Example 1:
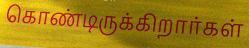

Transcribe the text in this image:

கொண்டிருக்கிறார்கள்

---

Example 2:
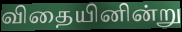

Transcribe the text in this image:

விதையினின்று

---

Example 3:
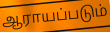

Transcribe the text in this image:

ஆராயப்படும்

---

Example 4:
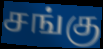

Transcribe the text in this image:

சங்கு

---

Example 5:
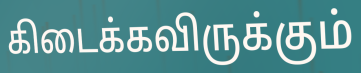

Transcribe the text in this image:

கிடைக்கவிருக்கும்